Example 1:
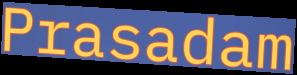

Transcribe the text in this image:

Prasadam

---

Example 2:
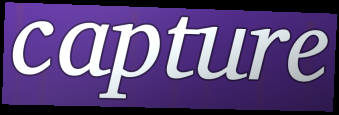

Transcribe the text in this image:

capture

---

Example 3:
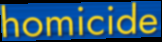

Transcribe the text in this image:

homicide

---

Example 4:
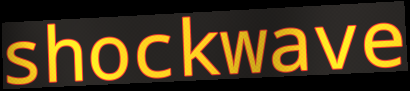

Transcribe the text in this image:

shockwave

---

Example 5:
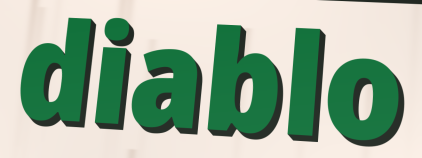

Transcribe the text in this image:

diablo